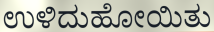
ಉಳಿದುಹೋಯಿತು